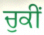
ਚੁਕੀਂ